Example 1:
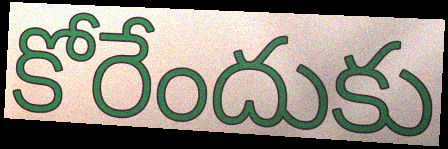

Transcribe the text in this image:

కోరేందుకు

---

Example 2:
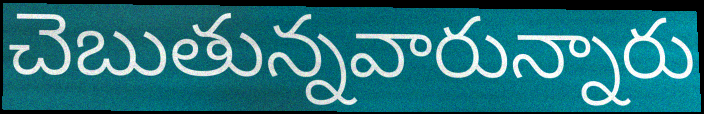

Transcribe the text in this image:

చెబుతున్నవారున్నారు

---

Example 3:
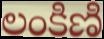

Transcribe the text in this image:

లంకిణి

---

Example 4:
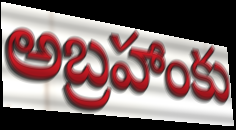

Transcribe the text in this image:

అబ్రహాంకు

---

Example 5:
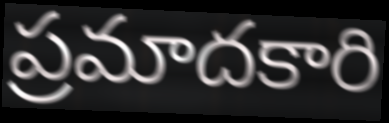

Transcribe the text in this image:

ప్రమాదకారి